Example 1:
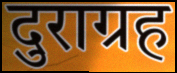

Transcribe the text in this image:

दुराग्रह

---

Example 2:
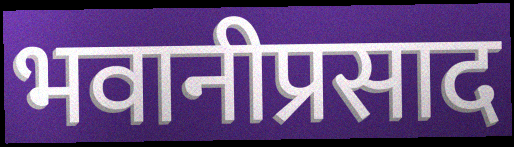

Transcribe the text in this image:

भवानीप्रसाद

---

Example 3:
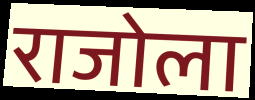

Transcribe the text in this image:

राजोला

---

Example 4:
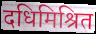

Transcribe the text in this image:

दधिमिश्रित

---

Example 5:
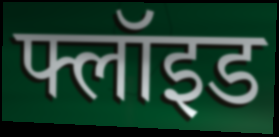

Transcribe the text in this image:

फ्लॉइड